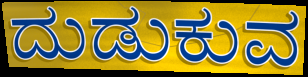
ದುಡುಕುವ